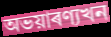
অভয়াৰণ্যখন